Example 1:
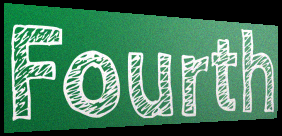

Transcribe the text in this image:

Fourth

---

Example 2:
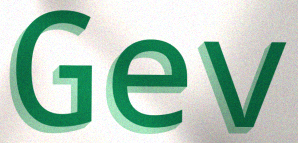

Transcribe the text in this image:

Gev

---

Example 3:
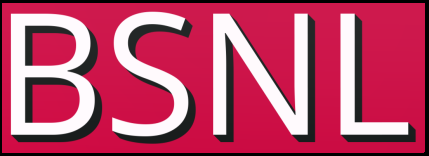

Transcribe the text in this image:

BSNL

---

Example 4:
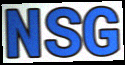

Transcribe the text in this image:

NSG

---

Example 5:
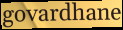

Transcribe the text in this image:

govardhane